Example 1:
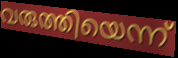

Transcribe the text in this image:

വരുത്തിയെന്ന്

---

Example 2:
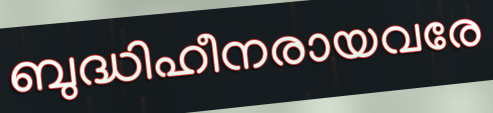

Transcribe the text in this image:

ബുദ്ധിഹീനരായവരേ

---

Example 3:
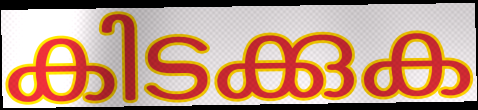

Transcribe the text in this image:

കിടക്കുക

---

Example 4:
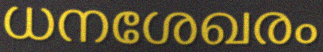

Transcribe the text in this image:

ധനശേഖരം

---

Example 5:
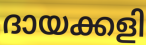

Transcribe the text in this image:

ദായക്കളി